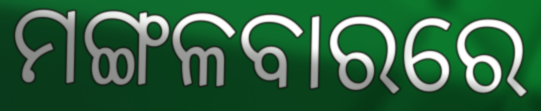
ମଙ୍ଗଳବାରରେ